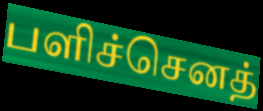
பளிச்செனத்